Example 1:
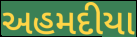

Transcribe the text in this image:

અહમદીયા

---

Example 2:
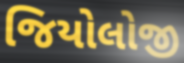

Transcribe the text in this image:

જિયોલોજી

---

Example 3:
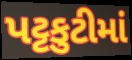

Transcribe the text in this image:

પટ્ટકુટીમાં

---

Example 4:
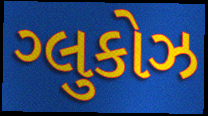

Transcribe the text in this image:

ગ્લુકોઝ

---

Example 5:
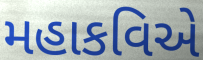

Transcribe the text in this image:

મહાકવિએ